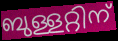
ബുള്ളറ്റിന്